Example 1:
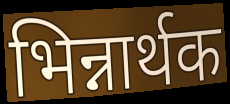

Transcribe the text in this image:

भिन्नार्थक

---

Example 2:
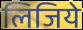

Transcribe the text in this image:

लिजिये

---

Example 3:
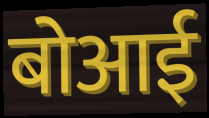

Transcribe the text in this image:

बोआई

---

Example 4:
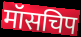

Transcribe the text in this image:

मॉसचिप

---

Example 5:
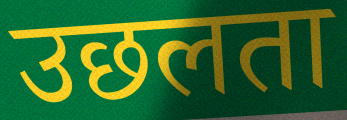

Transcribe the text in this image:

उछलता